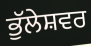
ਭੁੱਲੇਸ਼ਵਰ